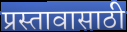
प्रस्तावासाठी